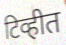
टिव्हीत